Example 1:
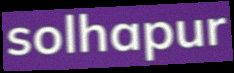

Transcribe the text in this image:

solhapur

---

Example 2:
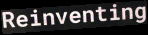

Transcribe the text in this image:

Reinventing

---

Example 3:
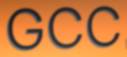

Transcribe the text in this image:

GCC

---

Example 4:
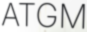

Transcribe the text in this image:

ATGM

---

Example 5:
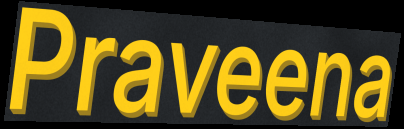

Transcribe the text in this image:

Praveena